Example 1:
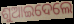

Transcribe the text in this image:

ଶୁଆଇଦେଲେ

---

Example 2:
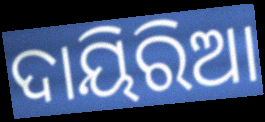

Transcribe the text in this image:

ଦାୟିରିଆ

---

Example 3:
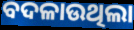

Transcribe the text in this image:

ବଦଳାଉଥିଲା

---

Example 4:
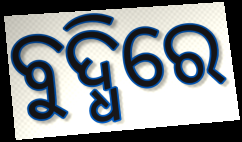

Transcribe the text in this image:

ବୁଦ୍ଧିରେ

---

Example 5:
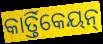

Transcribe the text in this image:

କାର୍ତ୍ତିକେୟନ୍